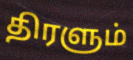
திரளும்